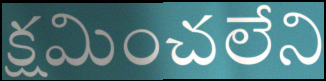
క్షమించలేని